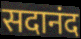
सदानंद